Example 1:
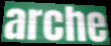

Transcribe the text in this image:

arche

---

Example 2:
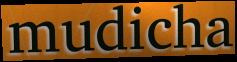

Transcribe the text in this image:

mudicha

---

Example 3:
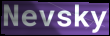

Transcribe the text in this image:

Nevsky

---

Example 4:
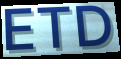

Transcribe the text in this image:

ETD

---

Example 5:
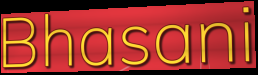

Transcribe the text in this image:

Bhasani